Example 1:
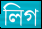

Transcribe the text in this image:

লিগ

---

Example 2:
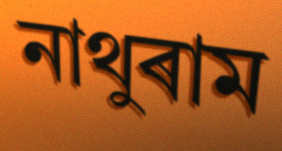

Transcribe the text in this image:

নাথুৰাম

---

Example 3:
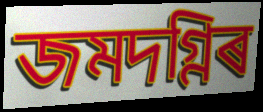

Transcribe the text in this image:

জমদগ্নিৰ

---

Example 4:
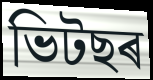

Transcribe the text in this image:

ভিটছৰ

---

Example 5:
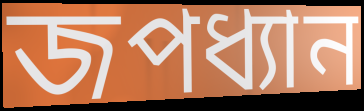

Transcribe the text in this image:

জপধ্যান